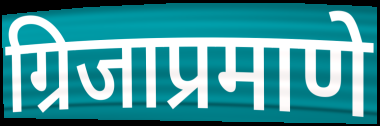
ग्रिजाप्रमाणे